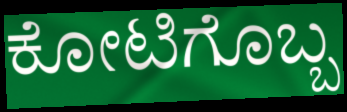
ಕೋಟಿಗೊಬ್ಬ